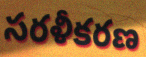
సరళీకరణ